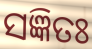
ସଜ୍ଞିତଃ